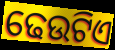
ଢେଉଟିଏ